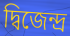
দ্বিজেন্দ্র